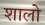
शालो